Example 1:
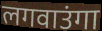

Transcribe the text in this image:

लगवाउंगा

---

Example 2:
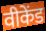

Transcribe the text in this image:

वीकेंड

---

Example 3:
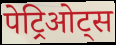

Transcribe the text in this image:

पेट्रिओट्स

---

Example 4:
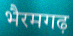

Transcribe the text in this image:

भैरमगढ़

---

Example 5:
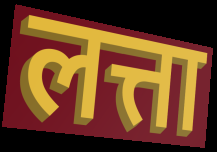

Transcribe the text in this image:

लत्ता